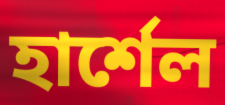
হার্শেল